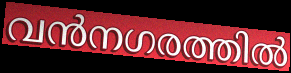
വൻനഗരത്തിൽ